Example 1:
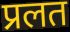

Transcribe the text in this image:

प्रलत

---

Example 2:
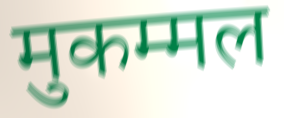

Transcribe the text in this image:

मुकम्मल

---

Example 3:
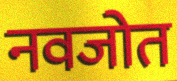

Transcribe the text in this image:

नवजोत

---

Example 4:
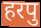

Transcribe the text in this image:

हरपु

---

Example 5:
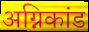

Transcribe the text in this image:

अग्निकांड